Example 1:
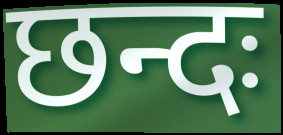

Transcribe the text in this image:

छन्दः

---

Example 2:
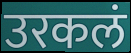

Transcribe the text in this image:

उरकलं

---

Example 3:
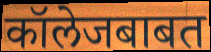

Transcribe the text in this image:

कॉलेजबाबत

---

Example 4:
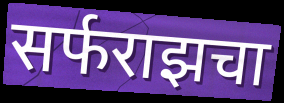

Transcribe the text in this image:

सर्फराझचा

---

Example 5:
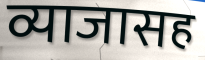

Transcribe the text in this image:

व्याजासह